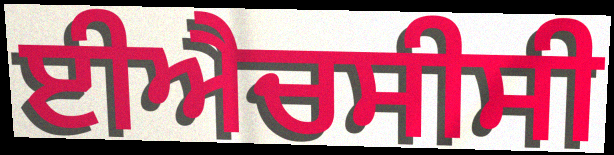
ਈਐਚਸੀਸੀ